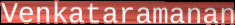
Venkataramanan